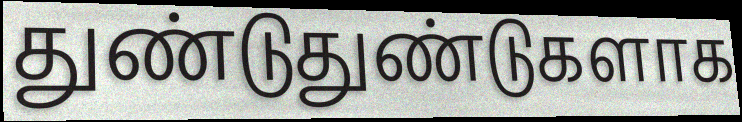
துண்டுதுண்டுகளாக